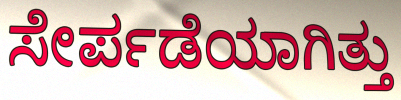
ಸೇರ್ಪಡೆಯಾಗಿತ್ತು